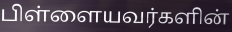
பிள்ளையவர்களின்